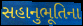
સહાનુભૂતિના